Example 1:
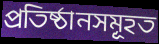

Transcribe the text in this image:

প্ৰতিষ্ঠানসমূহত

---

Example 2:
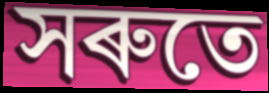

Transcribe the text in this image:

সৰুতে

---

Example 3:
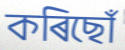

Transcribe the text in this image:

কৰিছোঁ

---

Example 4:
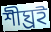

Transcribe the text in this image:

শীঘ্ৰই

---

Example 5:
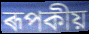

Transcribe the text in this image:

ৰূপকীয়